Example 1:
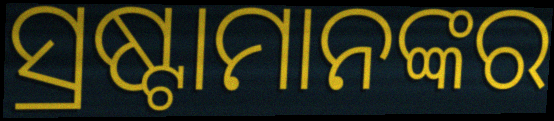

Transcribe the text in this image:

ସ୍ରଷ୍ଟାମାନଙ୍କର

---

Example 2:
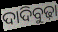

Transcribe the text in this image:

ଦାଦିବୁଢ଼ା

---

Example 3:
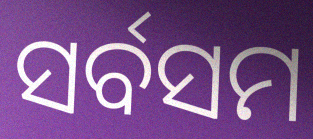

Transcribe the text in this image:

ସର୍ବସମ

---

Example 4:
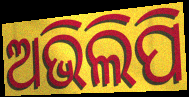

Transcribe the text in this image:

ଅଭିଲିପି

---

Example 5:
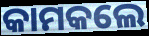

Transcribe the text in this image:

କାମକଲେ